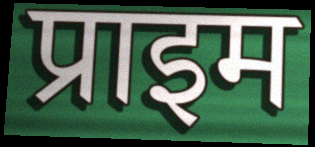
प्राइम